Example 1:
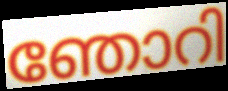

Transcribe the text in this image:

ഞോറി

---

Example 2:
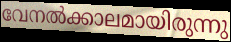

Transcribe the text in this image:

വേനൽക്കാലമായിരുന്നു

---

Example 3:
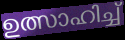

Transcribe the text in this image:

ഉത്സാഹിച്ച്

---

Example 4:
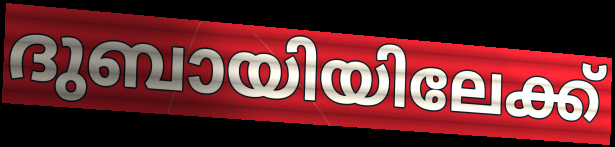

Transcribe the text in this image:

ദുബായിയിലേക്ക്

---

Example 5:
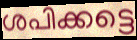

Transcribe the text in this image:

ശപിക്കട്ടെ